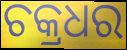
ଚକ୍ରଧର